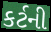
કર્ટની